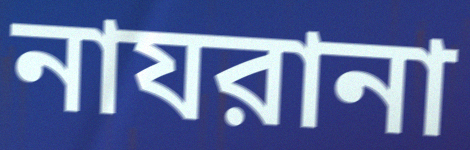
নাযরানা